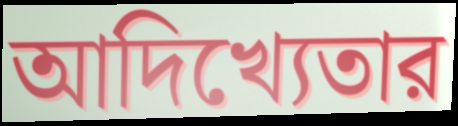
আদিখ্যেতার